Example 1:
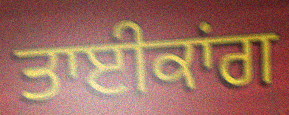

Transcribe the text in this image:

ਤਾਈਕਾਂਗ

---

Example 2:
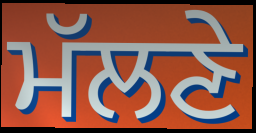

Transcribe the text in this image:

ਮੱਲਣੇ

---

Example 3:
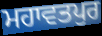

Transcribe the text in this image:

ਮਹਾਵਤਪੁਰ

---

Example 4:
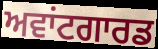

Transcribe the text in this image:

ਅਵਾਂਟਗਾਰਡ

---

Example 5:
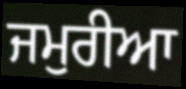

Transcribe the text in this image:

ਜਮੁਰੀਆ